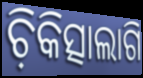
ଚ଼ିକିତ୍ସାଲାଗି